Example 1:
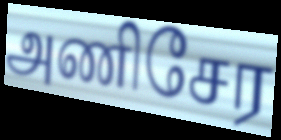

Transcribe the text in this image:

அணிசேர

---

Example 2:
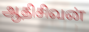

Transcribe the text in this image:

ஆதிசிவன்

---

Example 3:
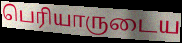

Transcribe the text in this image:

பெரியாருடைய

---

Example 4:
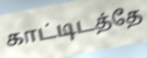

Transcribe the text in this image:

காட்டிடத்தே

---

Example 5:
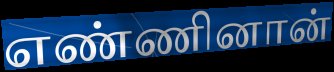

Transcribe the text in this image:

எண்ணினான்